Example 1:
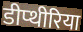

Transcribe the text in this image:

डीप्थीरिया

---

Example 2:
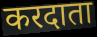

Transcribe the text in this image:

करदाता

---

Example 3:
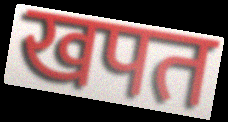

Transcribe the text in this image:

खपत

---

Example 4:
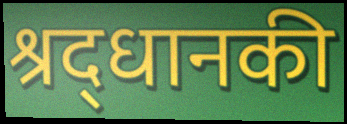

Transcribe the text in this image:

श्रद्धानकी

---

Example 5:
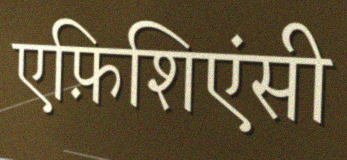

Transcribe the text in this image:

एफ़िशिएंसी